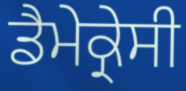
ਡੈਮੇਕ੍ਰੇਸੀ